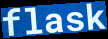
flask